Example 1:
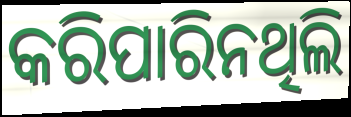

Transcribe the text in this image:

କରିପାରିନଥିଲି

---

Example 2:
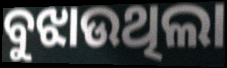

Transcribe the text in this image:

ବୁଝାଉଥିଲା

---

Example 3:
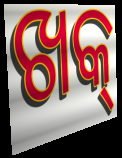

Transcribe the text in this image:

ଖକ୍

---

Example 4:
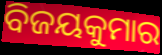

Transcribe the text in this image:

ବିଜୟକୁମାର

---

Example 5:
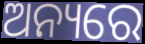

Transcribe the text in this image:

ଅନ୍ୟରେ